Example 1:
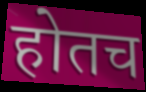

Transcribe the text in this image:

होतच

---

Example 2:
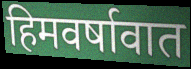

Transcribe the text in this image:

हिमवर्षावात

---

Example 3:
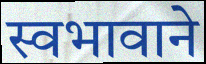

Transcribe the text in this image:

स्वभावाने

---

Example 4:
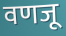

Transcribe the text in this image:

वणजू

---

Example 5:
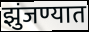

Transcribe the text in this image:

झुंजण्यात